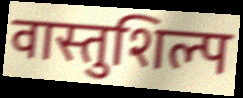
वास्तुशिल्प